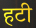
हटी